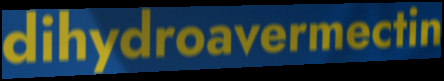
dihydroavermectin